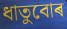
ধাতুবোৰ